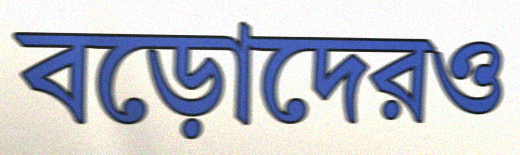
বড়োদেরও